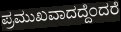
ಪ್ರಮುಖವಾದದ್ದೆಂದರೆ